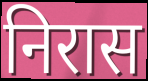
निरास